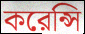
করেন্সি